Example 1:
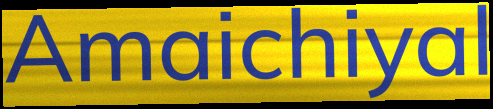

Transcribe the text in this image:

Amaichiyal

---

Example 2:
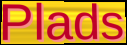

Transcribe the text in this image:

Plads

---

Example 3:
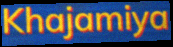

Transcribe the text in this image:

Khajamiya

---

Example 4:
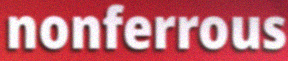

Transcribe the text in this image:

nonferrous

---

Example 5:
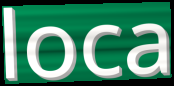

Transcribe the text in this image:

loca